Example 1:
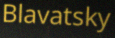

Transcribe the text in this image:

Blavatsky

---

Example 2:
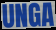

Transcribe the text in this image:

UNGA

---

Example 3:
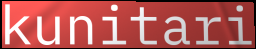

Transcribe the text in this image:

kunitari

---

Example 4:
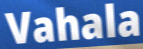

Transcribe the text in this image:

Vahala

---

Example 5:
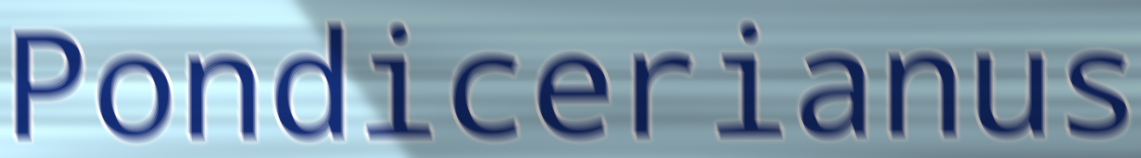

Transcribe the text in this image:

Pondicerianus